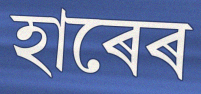
হাৰেৰ